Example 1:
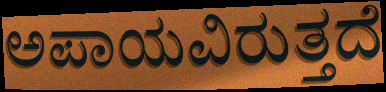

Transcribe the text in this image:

ಅಪಾಯವಿರುತ್ತದೆ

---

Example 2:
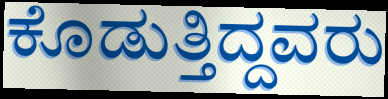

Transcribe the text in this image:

ಕೊಡುತ್ತಿದ್ದವರು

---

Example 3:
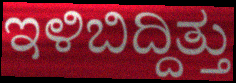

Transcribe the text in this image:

ಇಳಿಬಿದ್ದಿತ್ತು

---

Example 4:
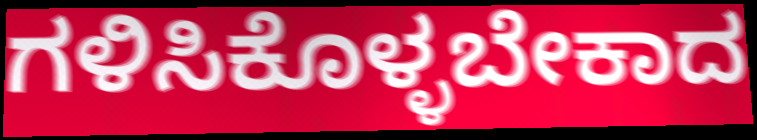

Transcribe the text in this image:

ಗಳಿಸಿಕೊಳ್ಳಬೇಕಾದ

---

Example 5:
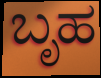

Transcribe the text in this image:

ಬೃಹ